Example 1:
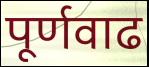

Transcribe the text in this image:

पूर्णवाढ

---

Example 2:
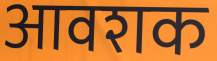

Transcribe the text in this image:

आवशक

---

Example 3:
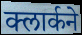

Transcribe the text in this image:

क्लार्कने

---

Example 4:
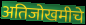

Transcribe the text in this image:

अतिजोखमीचे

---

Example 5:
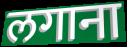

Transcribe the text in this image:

लगाना